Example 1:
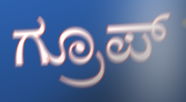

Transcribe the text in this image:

ಗ್ರೂಪ್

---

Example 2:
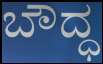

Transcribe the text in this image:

ಬೌದ್ಧ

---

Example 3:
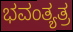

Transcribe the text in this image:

ಭವಂತ್ಯತ್ರ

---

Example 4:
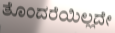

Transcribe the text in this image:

ತೊಂದರೆಯಿಲ್ಲದೇ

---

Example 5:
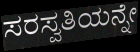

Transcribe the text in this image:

ಸರಸ್ವತಿಯನ್ನೇ